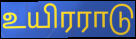
உயிரராடு